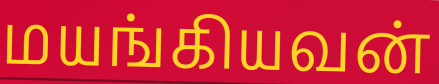
மயங்கியவன்